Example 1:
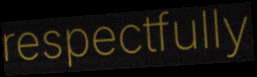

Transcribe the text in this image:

respectfully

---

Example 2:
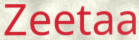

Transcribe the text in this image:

Zeetaa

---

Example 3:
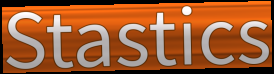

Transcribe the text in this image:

Stastics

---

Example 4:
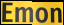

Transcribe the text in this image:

Emon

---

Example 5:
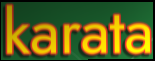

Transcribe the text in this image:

karata